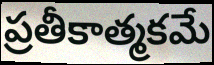
ప్రతీకాత్మకమే